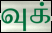
வுக்